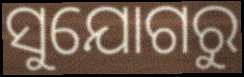
ସୁଯୋଗରୁ